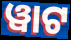
ୱାଟ